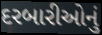
દરબારીઓનું